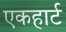
एकहार्ट